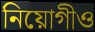
নিয়োগীও